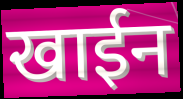
खाईन